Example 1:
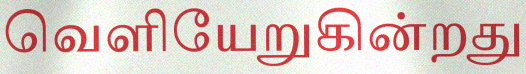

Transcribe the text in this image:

வெளியேறுகின்றது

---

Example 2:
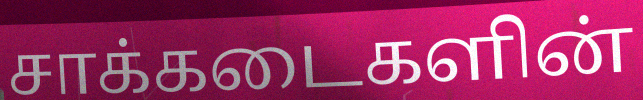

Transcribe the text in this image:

சாக்கடைகளின்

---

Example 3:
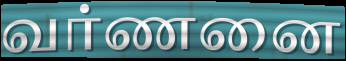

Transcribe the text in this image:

வர்ணனை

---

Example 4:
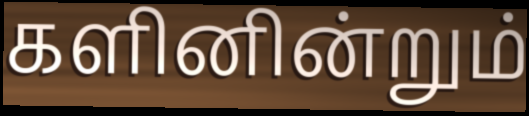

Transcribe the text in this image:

களினின்றும்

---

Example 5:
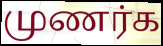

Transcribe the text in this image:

முணர்க